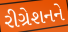
રીગ્રેશનને